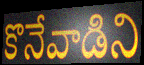
కొనేవాడిని